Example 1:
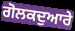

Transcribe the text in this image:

ਗੋਲਕਦੁਆਰੇ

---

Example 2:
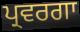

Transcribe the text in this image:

ਪ੍ਰਵਰਗਾ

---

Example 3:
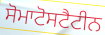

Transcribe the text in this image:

ਸੋਮਾਟੋਸਟੈਟੀਨ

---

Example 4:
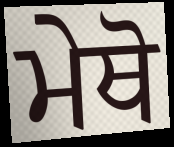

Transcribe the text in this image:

ਮੇਥੋ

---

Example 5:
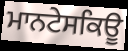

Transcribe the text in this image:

ਮਾਨਟੇਸਕਿਊ